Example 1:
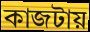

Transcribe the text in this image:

কাজটায়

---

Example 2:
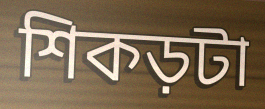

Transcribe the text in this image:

শিকড়টা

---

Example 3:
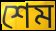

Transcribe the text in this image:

শেম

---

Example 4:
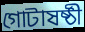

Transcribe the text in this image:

গোটাষষ্ঠী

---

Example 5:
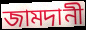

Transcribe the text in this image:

জামদানী